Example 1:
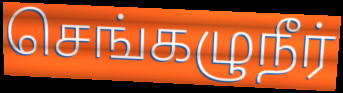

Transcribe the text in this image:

செங்கழுநீர்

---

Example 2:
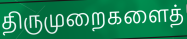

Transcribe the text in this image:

திருமுறைகளைத்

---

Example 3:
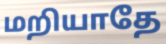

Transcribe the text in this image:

மறியாதே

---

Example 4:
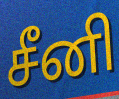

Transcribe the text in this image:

சீனி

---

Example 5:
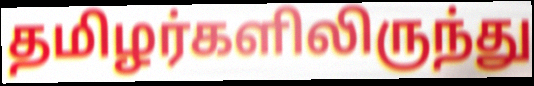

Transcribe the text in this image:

தமிழர்களிலிருந்து